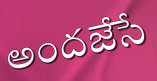
అందజేసే